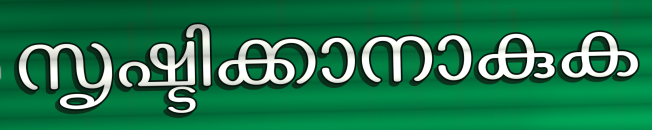
സൃഷ്ടിക്കാനാകുക